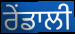
ਰੇਂਡਾਲੀ